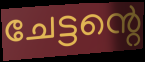
ചേട്ടന്റെ